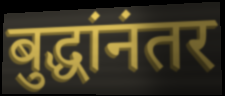
बुद्धांनंतर